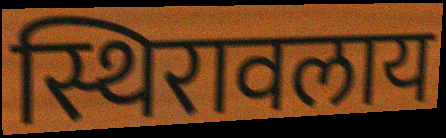
स्थिरावलाय